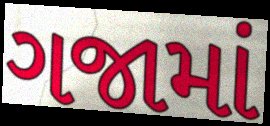
ગજામાં